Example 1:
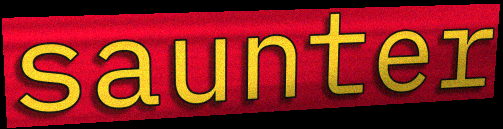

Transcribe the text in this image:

saunter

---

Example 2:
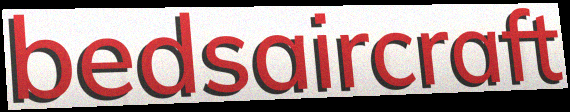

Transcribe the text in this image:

bedsaircraft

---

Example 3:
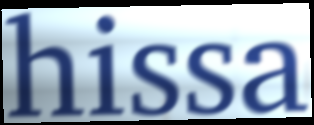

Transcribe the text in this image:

hissa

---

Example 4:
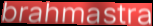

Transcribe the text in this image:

brahmastra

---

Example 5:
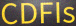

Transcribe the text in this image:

CDFIs